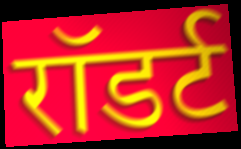
रॉडर्ट